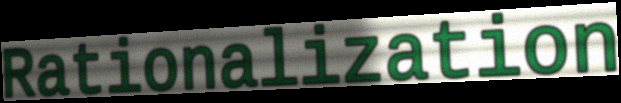
Rationalization